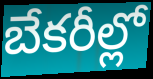
బేకరీల్లో